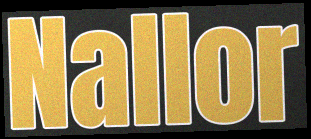
Nallor